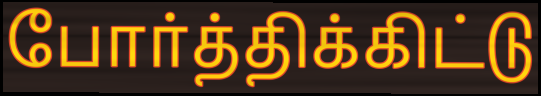
போர்த்திக்கிட்டு